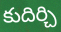
కుదిర్చి